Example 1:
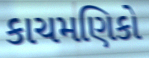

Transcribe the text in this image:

કાચમણિકો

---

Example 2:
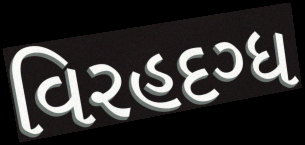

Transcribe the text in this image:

વિરહદગ્ધ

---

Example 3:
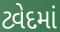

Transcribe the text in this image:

ટ્વેદમાં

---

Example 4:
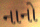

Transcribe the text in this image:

નાનો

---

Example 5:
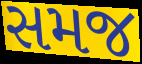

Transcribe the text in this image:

સમજ